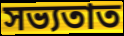
সভ্যতাত